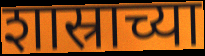
शास्राच्या